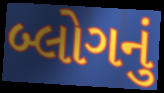
બ્લોગનું